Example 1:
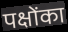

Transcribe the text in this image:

पक्षोंका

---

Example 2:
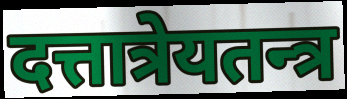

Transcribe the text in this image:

दत्तात्रेयतन्त्र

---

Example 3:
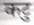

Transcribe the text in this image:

कटु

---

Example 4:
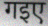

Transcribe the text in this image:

गइए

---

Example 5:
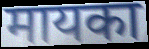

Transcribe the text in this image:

मायका